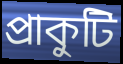
প্রাকুটি